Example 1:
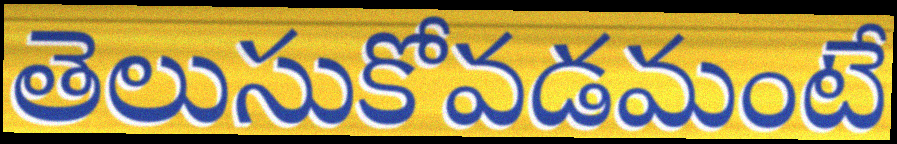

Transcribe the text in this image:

తెలుసుకోవడమంటే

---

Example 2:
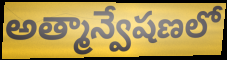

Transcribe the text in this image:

అత్మాన్వేషణలో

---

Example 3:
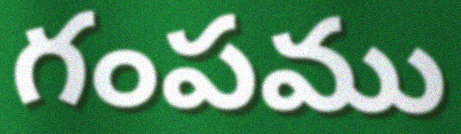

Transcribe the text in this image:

గంపము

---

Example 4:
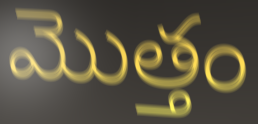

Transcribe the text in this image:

మొత్తం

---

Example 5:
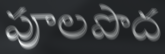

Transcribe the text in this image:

పూలపొద